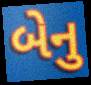
બેનુ